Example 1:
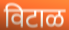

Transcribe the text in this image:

विटाळ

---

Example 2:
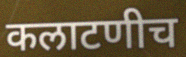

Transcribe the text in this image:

कलाटणीच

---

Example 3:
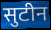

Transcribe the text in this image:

सुटीन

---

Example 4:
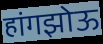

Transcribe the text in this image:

हांगझोऊ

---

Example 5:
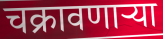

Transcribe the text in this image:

चक्रावणाऱ्या